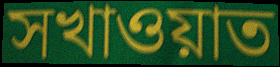
সখাওয়াত